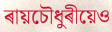
ৰায়চৌধুৰীয়েও